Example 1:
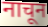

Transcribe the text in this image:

नाचून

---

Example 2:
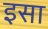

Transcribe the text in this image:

इसा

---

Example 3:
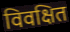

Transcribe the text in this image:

विवक्षित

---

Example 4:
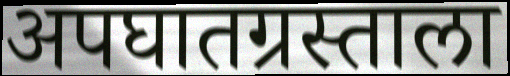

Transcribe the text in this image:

अपघातग्रस्ताला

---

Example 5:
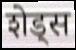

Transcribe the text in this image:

शेड्स